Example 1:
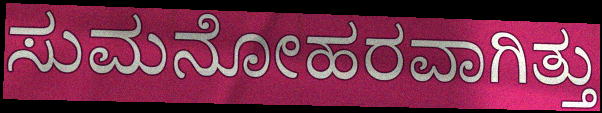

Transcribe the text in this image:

ಸುಮನೋಹರವಾಗಿತ್ತು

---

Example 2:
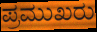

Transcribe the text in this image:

ಪ್ರಮುಖರು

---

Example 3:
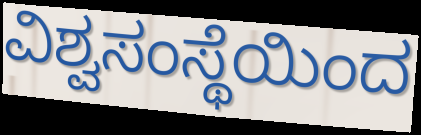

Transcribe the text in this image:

ವಿಶ್ವಸಂಸ್ಥೆಯಿಂದ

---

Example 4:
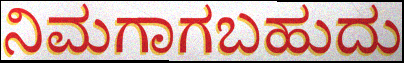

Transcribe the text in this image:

ನಿಮಗಾಗಬಹುದು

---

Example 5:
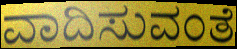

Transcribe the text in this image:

ವಾದಿಸುವಂತೆ